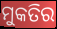
ମୁକତିର